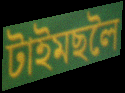
টাইমছলৈ